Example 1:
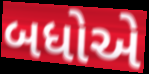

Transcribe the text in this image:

બધોએ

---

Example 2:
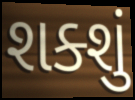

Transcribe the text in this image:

શક્શું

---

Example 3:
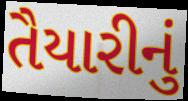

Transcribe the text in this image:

તૈયારીનું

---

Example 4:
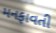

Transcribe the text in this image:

મનફાવતી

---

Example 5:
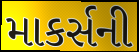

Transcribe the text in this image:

માકર્સની